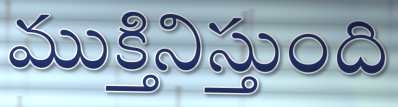
ముక్తినిస్తుంది